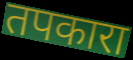
तपकारा